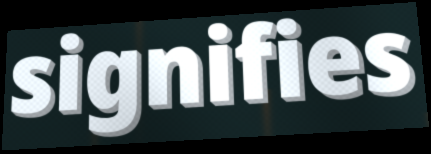
signifies